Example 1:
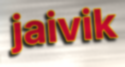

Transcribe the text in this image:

jaivik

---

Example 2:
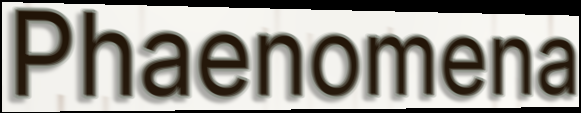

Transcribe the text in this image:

Phaenomena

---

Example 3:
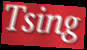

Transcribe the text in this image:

Tsing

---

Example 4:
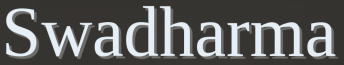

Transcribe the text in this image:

Swadharma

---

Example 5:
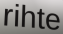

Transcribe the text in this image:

rihte